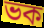
ভক